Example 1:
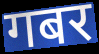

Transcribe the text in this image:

गबर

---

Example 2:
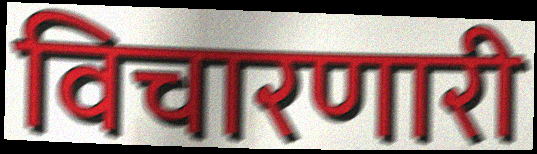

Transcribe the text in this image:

विचारणारी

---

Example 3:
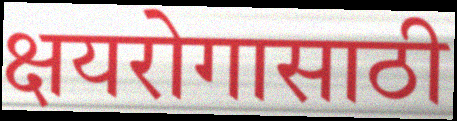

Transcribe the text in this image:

क्षयरोगासाठी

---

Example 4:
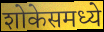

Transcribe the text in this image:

शोकेसमध्ये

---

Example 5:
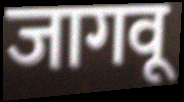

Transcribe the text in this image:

जागवू